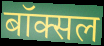
बॉक्सल